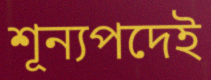
শূন্যপদেই